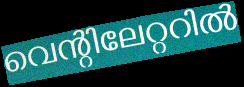
വെന്റിലേറ്ററിൽ